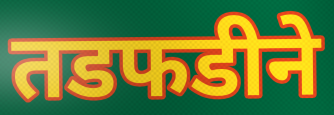
तडफडीने